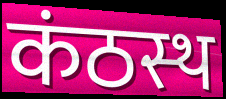
कंठस्थ